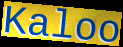
Kaloo